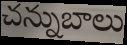
చన్నుబాలు